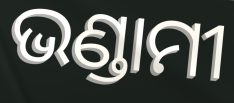
ଭଣ୍ଡାମୀ